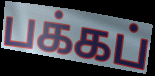
பக்கப்